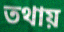
তথায়